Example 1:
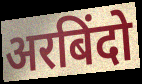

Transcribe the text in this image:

अरबिंदो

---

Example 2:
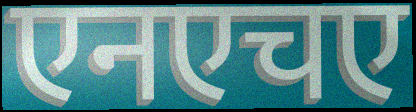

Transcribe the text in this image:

एनएचए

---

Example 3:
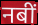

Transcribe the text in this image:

नबीं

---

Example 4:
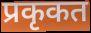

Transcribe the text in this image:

प्रकृकत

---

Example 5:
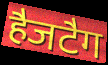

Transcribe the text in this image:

हैजटैग